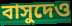
বাসুদেও